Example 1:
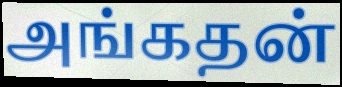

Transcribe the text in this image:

அங்கதன்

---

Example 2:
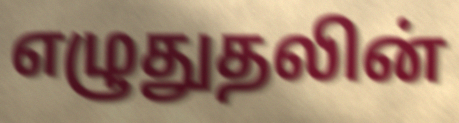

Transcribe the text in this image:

எழுதுதலின்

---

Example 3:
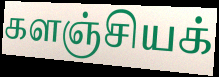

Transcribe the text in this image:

களஞ்சியக்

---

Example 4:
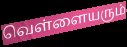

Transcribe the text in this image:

வெள்ளையரும்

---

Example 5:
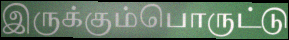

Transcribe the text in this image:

இருக்கும்பொருட்டு